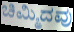
ಚಿಮ್ಮಿದವು